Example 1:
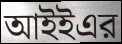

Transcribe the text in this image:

আইইএর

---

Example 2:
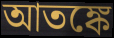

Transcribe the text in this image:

আতঙ্কে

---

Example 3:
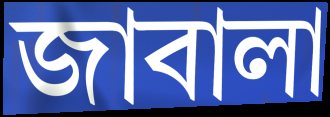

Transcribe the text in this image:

জাবালা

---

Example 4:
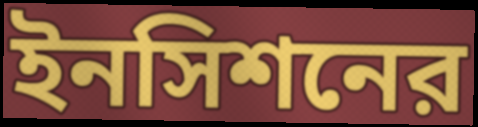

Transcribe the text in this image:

ইনসিশনের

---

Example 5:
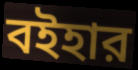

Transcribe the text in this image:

বইহার